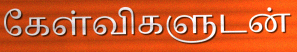
கேள்விகளுடன்